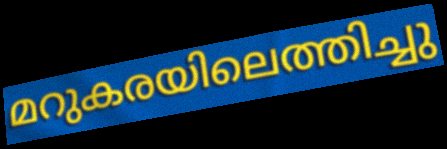
മറുകരയിലെത്തിച്ചു